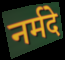
नर्मदे